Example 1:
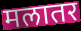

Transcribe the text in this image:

मलातर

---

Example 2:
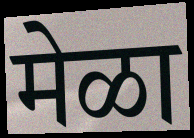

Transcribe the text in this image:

मेळा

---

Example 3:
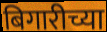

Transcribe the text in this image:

बिगारीच्या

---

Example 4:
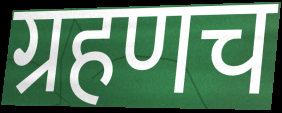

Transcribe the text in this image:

ग्रहणच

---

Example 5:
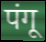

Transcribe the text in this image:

पंगू